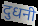
दुधनी